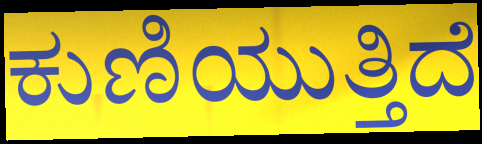
ಕುಣಿಯುತ್ತಿದೆ